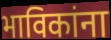
भाविकांना